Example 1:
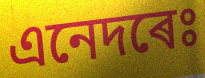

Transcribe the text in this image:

এনেদৰেঃ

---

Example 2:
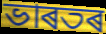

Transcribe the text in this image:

ভাৰতৰ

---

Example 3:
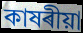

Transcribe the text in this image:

কাষৰীয়া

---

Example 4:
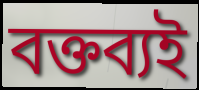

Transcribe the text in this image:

বক্তব্যই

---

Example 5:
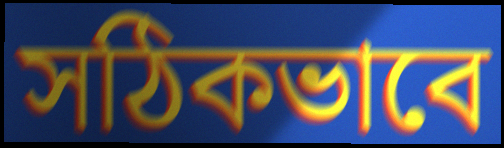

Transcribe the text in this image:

সঠিকভাবে